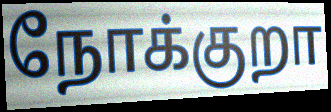
நோக்குறா